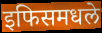
इफिसमधले